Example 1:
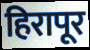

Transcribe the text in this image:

हिरापूर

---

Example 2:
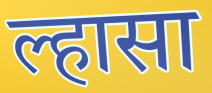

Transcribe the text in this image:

ल्हासा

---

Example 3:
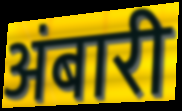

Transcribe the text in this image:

अंबारी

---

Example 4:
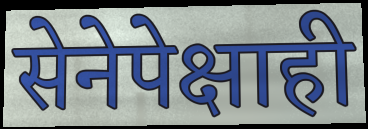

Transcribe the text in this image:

सेनेपेक्षाही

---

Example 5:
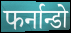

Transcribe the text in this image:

फर्नान्डो